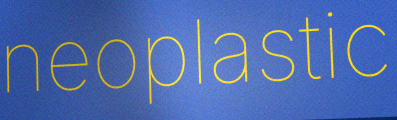
neoplastic